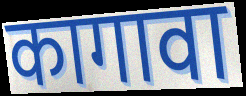
कागावा